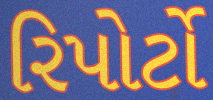
રિપોર્ટો